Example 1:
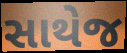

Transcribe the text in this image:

સાથેજ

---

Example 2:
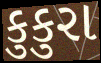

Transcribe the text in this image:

કુકુરા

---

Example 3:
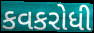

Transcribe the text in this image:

કવકરોધી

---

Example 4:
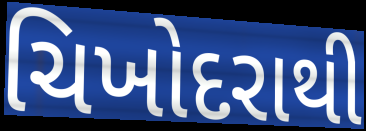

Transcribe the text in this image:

ચિખોદરાથી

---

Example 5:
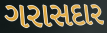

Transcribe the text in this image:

ગરાસદાર